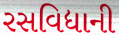
રસવિદ્યાની